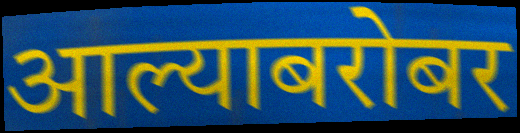
आल्याबरोबर